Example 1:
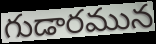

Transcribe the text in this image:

గుడారమున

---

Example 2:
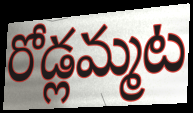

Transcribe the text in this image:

రోడ్లమ్మట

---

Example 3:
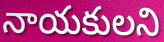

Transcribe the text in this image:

నాయకులని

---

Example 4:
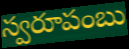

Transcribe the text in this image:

స్వరూపంబు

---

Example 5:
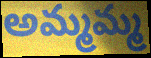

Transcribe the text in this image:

అమ్మమ్మ